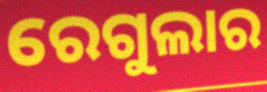
ରେଗୁଲାର